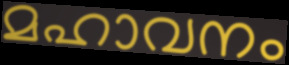
മഹാവനം